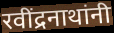
रवींद्रनाथांनी